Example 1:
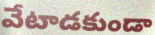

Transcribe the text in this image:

వేటాడకుండా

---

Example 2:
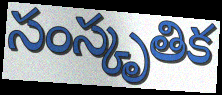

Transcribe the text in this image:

సంస్కృతిక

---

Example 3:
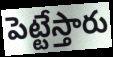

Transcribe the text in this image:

పెట్టేస్తారు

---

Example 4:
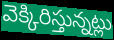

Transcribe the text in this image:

వెక్కిరిస్తున్నట్లు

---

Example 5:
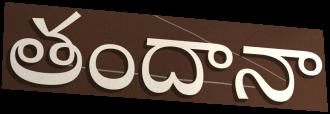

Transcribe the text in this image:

తందానా